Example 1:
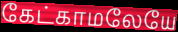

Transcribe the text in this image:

கேட்காமலேயே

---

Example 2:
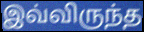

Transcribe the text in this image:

இவ்விருந்த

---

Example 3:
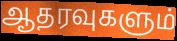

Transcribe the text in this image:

ஆதரவுகளும்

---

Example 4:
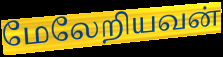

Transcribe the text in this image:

மேலேறியவன்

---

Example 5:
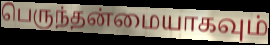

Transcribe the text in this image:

பெருந்தன்மையாகவும்